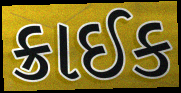
ક્રાઈક